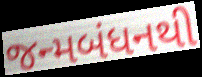
જન્મબંધનથી